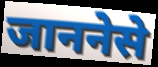
जाननेसे